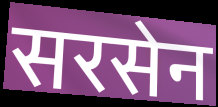
सरसेन